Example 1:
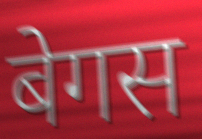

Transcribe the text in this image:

बेगस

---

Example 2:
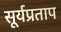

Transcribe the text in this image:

सूर्यप्रताप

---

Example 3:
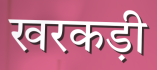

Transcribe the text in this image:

खरकड़ी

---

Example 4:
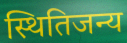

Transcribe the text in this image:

स्थितिजन्य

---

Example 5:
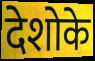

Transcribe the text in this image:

देशोके